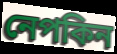
নেপকিন